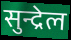
सुन्द्रेल